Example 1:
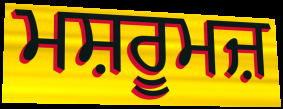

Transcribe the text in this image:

ਮਸ਼ਰੂਮਜ਼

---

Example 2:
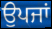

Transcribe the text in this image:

ਉਪਜਾਂ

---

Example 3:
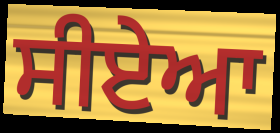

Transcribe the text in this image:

ਸੀਏਆ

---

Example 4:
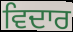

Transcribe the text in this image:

ਵਿਦਾਰ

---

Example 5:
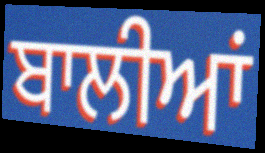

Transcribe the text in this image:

ਬਾਲੀਆਂ